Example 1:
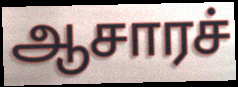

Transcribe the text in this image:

ஆசாரச்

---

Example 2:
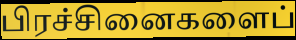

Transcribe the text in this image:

பிரச்சினைகளைப்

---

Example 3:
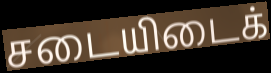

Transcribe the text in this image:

சடையிடைக்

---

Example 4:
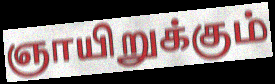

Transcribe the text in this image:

ஞாயிறுக்கும்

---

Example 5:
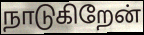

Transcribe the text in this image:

நாடுகிறேன்